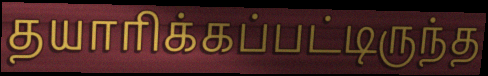
தயாரிக்கப்பட்டிருந்த